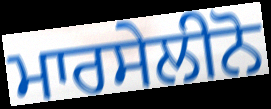
ਮਾਰਸੇਲੀਨੋ